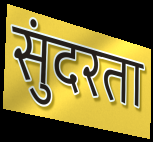
सुंदरता